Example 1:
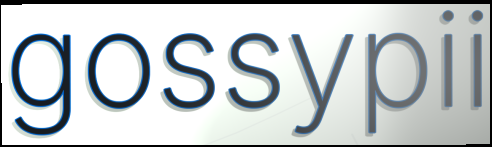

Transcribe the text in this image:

gossypii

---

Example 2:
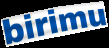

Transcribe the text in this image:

birimu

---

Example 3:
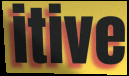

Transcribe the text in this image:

itive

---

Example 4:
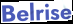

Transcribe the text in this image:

Belrise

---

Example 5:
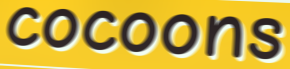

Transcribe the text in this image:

cocoons